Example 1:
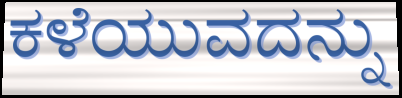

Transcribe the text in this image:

ಕಳೆಯುವದನ್ನು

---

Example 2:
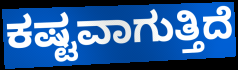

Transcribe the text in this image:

ಕಷ್ಟವಾಗುತ್ತಿದೆ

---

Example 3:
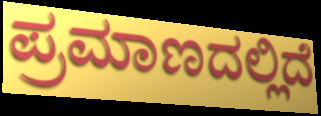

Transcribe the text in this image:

ಪ್ರಮಾಣದಲ್ಲಿದೆ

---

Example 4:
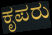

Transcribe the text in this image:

ಕೃಪರು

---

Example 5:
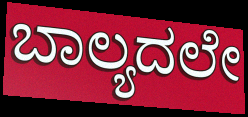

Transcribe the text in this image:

ಬಾಲ್ಯದಲೇ